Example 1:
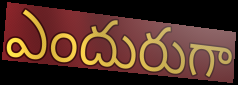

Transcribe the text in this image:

ఎందురుగా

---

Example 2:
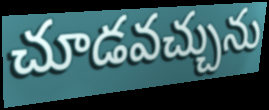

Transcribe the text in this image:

చూడవచ్చును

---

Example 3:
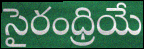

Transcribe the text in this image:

సైరంధ్రియే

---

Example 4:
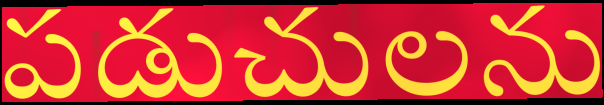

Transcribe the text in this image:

పడుచులను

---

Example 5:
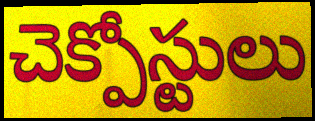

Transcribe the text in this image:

చెక్పోస్టులు